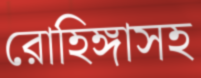
রোহিঙ্গাসহ